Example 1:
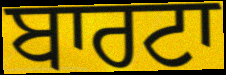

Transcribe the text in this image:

ਬਾਰਟਾ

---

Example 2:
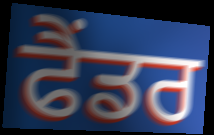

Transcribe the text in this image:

ਫੈਂਡਰ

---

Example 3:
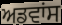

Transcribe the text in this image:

ਅਡਵਾਂਸ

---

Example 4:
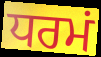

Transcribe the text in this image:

ਧਰਮਂ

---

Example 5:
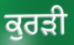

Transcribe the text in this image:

ਕੁਰੜੀ